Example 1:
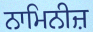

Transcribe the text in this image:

ਨਾਮਿਨੀਜ਼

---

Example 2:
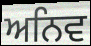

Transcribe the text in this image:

ਅਨਿਵ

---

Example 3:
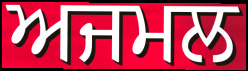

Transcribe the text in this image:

ਅਜਮਲ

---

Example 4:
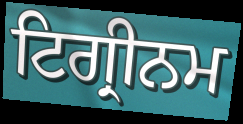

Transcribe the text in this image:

ਟਿਗ੍ਰੀਨਮ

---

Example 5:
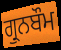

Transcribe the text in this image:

ਗ੍ਰੁਨਬੌਮ